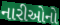
નારીઓનો